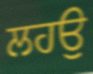
ਲਹਉ